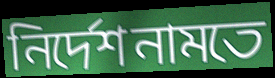
নির্দেশনামতে